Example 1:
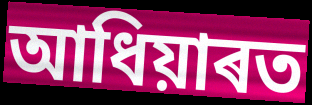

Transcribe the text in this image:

আধিয়াৰত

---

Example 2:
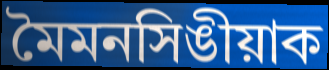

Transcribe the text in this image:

মৈমনসিঙীয়াক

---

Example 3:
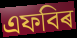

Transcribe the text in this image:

এফবিৰ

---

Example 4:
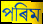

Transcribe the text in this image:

পৰিম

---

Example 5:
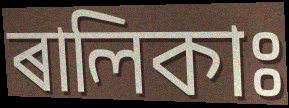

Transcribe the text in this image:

ৰালিকাঃ